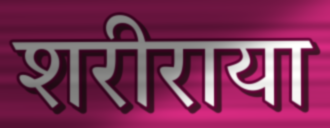
शरीराया